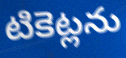
టికెట్లను